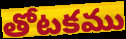
తోటకము